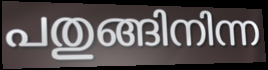
പതുങ്ങിനിന്ന